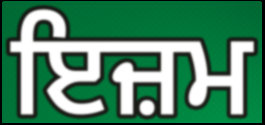
ਇਜ਼ਮ